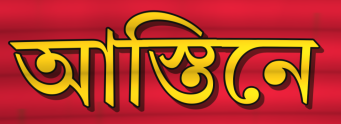
আস্তিনে